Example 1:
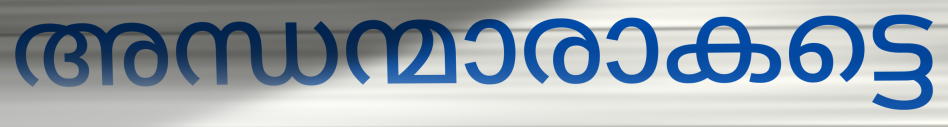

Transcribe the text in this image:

അന്ധന്മാരാകട്ടെ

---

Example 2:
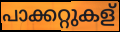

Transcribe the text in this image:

പാക്കറ്റുകള്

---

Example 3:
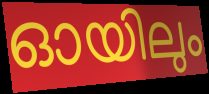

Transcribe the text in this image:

ഓയിലും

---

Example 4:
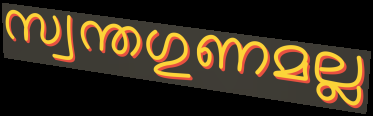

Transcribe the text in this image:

സ്വന്തഗുണമല്ല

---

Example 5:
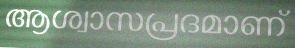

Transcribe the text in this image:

ആശ്വാസപ്രദമാണ്